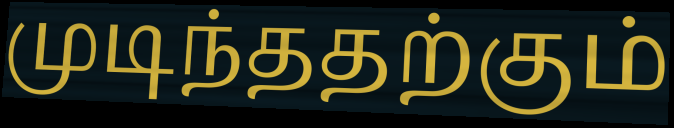
முடிந்ததற்கும்